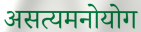
असत्यमनोयोग